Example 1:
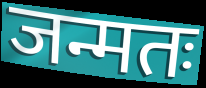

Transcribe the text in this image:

जन्मतः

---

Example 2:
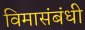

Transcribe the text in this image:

विमासंबंधी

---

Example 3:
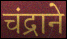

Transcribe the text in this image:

चंद्राने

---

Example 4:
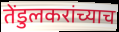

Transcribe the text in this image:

तेंडुलकरांच्याच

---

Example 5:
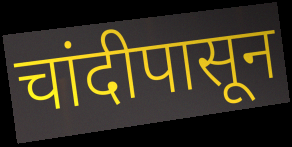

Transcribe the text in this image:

चांदीपासून